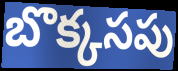
బొక్కసపు